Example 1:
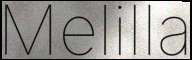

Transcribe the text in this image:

Melilla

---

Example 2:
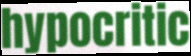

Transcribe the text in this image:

hypocritic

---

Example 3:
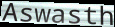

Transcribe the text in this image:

Aswasth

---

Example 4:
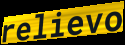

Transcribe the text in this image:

relievo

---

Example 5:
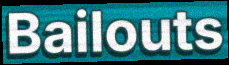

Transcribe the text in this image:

Bailouts